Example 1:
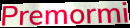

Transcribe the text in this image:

Premormi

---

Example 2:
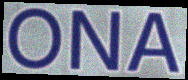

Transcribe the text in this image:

ONA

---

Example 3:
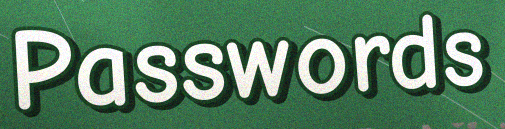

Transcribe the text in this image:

Passwords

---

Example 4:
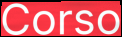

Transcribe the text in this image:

Corso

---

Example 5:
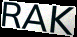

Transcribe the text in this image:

RAK